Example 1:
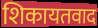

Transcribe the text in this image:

शिकायतवाद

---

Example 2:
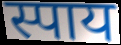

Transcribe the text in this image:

स्पाय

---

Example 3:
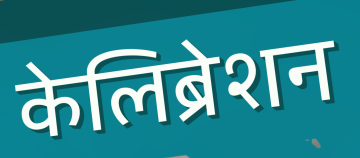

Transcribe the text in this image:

केलिब्रेशन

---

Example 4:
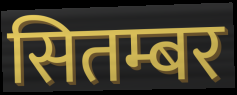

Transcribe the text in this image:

सितम्बर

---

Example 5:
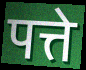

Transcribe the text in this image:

पत्ते